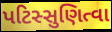
પટિસ્સુણિત્વા